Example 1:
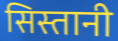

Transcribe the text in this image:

सिस्तानी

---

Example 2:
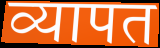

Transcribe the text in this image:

व्यापत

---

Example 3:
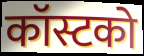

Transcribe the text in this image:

कॉस्टको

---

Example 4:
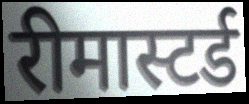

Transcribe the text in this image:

रीमास्टर्ड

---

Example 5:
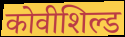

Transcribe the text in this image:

कोवीशिल्ड